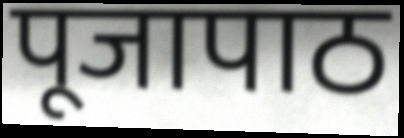
पूजापाठ